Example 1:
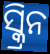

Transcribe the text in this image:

ସ୍କ୍ରିନ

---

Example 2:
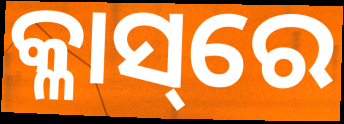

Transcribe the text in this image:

କ୍ଳାସ୍‌ରେ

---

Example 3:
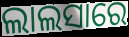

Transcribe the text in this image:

ଲାଲସାରେ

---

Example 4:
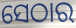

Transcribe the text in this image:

ସେଠାର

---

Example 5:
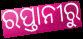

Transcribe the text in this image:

ରପ୍ତାନୀରୁ